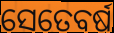
ସେତେବର୍ଷ